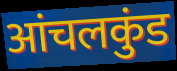
आंचलकुंड